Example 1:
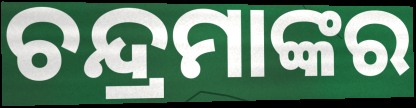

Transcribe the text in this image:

ଚନ୍ଦ୍ରମାଙ୍କର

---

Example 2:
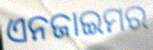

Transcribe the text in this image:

ଏନଜାଇମର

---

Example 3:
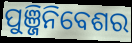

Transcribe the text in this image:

ପୁଞ୍ଜିନିବେଶର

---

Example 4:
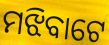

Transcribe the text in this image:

ମଝିବାଟେ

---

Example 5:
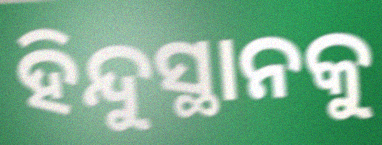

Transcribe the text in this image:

ହିନ୍ଦୁସ୍ଥାନକୁ